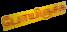
போயிருச்சு